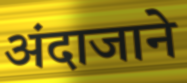
अंदाजाने